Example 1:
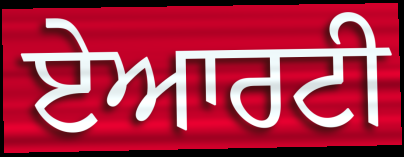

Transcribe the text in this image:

ਏਆਰਟੀ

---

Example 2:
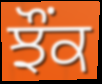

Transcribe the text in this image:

ਝੌਂਕ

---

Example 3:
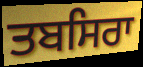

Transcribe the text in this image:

ਤਬਸਿਰਾ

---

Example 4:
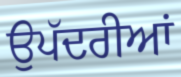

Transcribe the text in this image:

ਉਪੱਦਰੀਆਂ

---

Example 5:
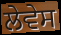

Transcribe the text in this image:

ਲੇਵੇਸ